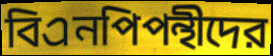
বিএনপিপন্থীদের